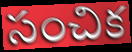
సంచిక